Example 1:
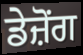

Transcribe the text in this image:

ਡੇਜ਼ੋਂਗ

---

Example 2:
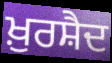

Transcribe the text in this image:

ਖ਼ੁਰਸ਼ੈਦ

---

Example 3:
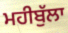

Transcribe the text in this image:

ਮਹੀਬੁੱਲਾ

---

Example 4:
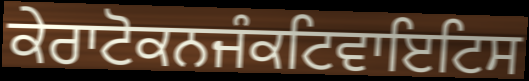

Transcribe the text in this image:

ਕੇਰਾਟੋਕਨਜੰਕਟਿਵਾਇਟਿਸ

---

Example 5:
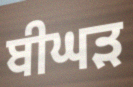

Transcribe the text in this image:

ਬੀਘੜ